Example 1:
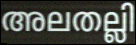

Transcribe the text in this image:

അലതല്ലി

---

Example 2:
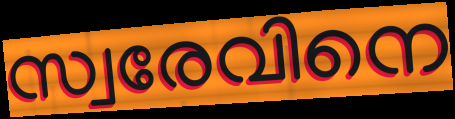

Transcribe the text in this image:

സ്വരേവിനെ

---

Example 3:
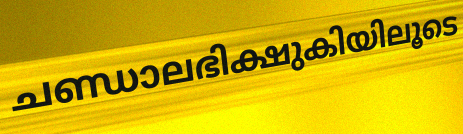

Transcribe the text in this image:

ചണ്ഡാലഭിക്ഷുകിയിലൂടെ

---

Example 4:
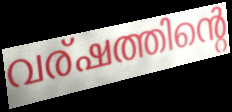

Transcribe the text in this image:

വര്ഷത്തിന്റെ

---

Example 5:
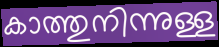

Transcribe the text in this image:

കാത്തുനിന്നുള്ള